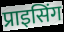
प्राइसिंग